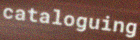
cataloguing